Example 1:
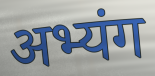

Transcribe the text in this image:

अभ्यंग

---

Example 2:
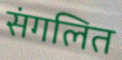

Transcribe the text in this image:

संगलित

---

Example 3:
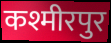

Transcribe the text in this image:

कश्मीरपुर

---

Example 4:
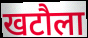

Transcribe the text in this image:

खटौला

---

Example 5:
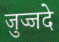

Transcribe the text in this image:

जुज्जदे